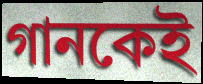
গানকেই